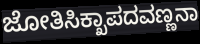
ಜೋತಿಸಿಕ್ಖಾಪದವಣ್ಣನಾ